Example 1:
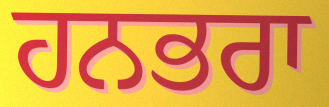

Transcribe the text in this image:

ਹਨਭਰਾ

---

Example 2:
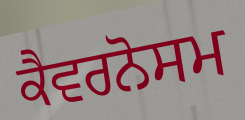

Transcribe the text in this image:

ਕੈਵਰਨੋਸਮ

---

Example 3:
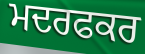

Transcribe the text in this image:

ਮਦਰਫਕਰ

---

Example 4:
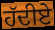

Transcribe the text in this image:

ਹੱਦੀਏ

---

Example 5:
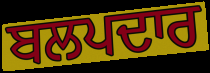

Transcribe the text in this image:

ਬਲਪਦਾਰ